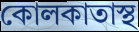
কোলকাতাস্থ